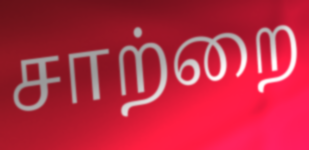
சாற்றை